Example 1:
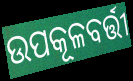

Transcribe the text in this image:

ଉପକୂଳବର୍ତ୍ତୀ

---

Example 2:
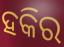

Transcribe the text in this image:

ହକିର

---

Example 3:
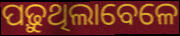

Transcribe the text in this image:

ପଢ଼ୁଥିଲାବେଳେ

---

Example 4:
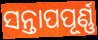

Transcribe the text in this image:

ସନ୍ତାପପୂର୍ଣ୍ଣ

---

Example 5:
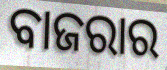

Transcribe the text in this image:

ବାଜରାର